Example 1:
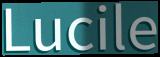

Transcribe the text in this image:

Lucile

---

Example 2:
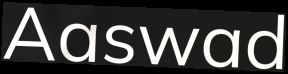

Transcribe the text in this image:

Aaswad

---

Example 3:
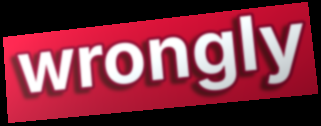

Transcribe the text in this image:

wrongly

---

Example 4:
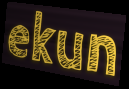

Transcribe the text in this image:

ekun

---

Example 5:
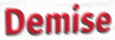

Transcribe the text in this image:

Demise